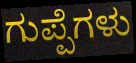
ಗುಪ್ಪೆಗಳು